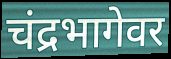
चंद्रभागेवर